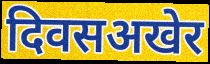
दिवसअखेर